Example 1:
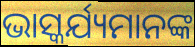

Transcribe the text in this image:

ଭାସ୍କର୍ଯ୍ୟମାନଙ୍କ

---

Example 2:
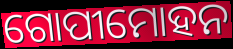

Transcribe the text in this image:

ଗୋପୀମୋହନ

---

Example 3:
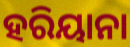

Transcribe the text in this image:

ହରିୟାନା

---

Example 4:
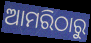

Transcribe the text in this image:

ଆମରିଠାରୁ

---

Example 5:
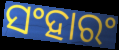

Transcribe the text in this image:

ସଂହାରଂ